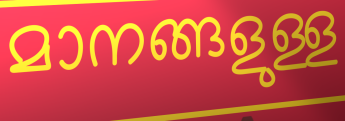
മാനങ്ങളുള്ള